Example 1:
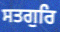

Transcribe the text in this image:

ਸਤਗੁਰਿ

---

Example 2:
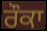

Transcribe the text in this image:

ਰੌਕਾ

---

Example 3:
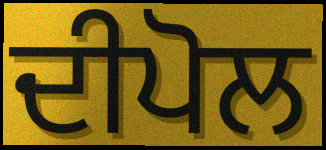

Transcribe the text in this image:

ਦੀਪੋਲ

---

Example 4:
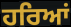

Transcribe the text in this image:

ਹਰਿਆਂ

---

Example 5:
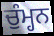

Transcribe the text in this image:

ਚੁੰਮ੍ਹਨ